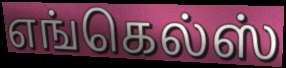
எங்கெல்ஸ்